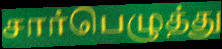
சார்பெழுத்து